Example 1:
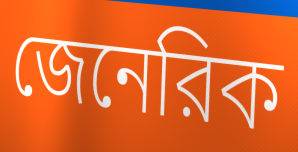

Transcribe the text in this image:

জেনেরিক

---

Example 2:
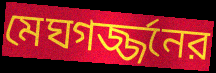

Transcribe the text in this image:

মেঘগর্জ্জনের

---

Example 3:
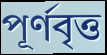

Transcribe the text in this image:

পূর্ণবৃত্ত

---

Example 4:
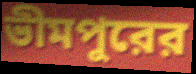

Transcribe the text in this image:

ভীমপুরের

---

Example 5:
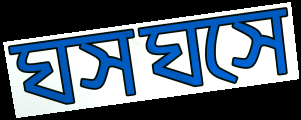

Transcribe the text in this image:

ঘসঘসে